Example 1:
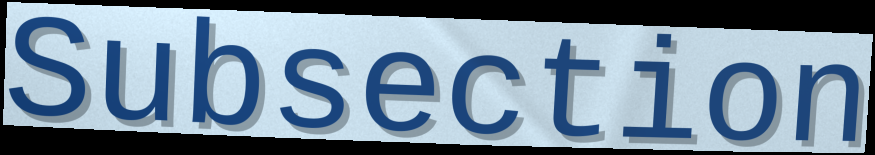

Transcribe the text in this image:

Subsection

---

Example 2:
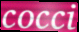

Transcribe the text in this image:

cocci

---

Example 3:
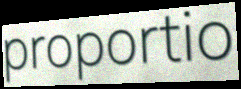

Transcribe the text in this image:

proportio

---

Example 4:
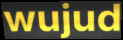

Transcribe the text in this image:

wujud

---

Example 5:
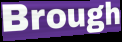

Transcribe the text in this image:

Brough